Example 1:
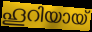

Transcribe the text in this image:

ഹൂറിയായ്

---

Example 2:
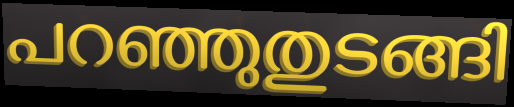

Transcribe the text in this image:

പറഞ്ഞുതുടങ്ങി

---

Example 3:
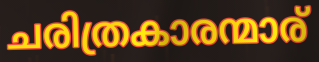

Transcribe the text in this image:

ചരിത്രകാരന്മാര്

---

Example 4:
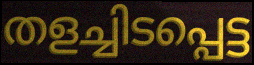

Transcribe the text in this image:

തളച്ചിടപ്പെട്ട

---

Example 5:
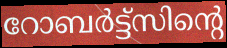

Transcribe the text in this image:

റോബർട്ട്സിന്റെ